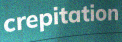
crepitation